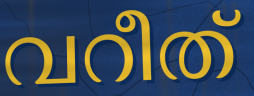
വറീത്